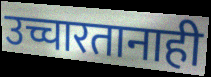
उच्चारतानाही